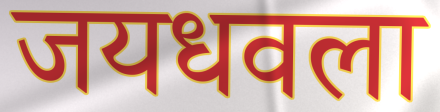
जयधवला